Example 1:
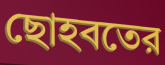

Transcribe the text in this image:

ছোহবতের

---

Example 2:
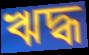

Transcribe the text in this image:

ঋদ্ধ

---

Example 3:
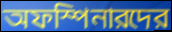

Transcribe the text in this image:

অফস্পিনারদের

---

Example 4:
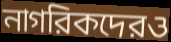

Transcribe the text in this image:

নাগরিকদেরও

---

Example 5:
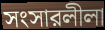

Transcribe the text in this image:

সংসারলীলা